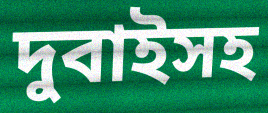
দুবাইসহ